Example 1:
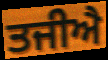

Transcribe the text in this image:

ਤਜੀਐ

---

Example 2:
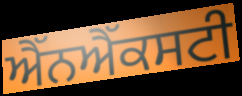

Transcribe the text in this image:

ਐੱਨਐੱਕਸਟੀ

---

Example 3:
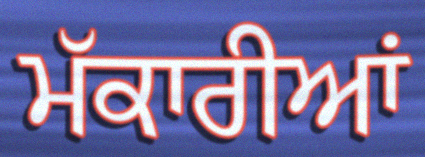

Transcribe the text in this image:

ਮੱਕਾਰੀਆਂ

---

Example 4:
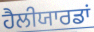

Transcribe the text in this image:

ਹੈਲੀਯਾਰਡਾਂ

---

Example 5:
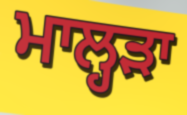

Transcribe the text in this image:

ਮਾਲ੍ਹੜਾ